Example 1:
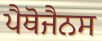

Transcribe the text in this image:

ਪੈਥੋਜੈਨਸ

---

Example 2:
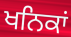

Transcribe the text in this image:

ਖਨਿਕਾਂ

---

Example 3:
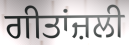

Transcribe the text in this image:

ਗੀਤਾਂਜ਼ਲੀ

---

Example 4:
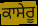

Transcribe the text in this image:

ਕਾਸੇਰੂ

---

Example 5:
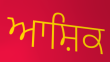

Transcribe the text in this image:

ਆਸ਼ਿਕ